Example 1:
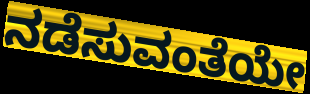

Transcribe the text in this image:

ನಡೆಸುವಂತೆಯೇ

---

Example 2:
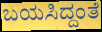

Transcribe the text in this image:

ಬಯಸಿದ್ದಂತೆ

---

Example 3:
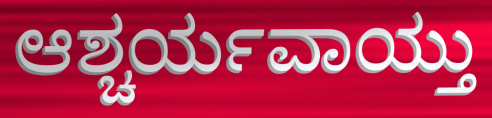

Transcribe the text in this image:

ಆಶ್ಚರ್ಯವಾಯ್ತು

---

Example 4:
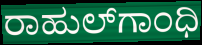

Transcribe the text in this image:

ರಾಹುಲ್‌ಗಾಂಧಿ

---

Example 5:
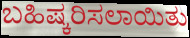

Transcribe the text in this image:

ಬಹಿಷ್ಕರಿಸಲಾಯಿತು